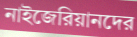
নাইজেরিয়ানদের